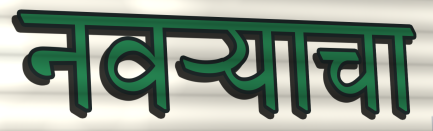
नवऱ्याचा